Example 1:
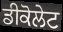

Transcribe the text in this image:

ਡੀਕੋਲੇਟ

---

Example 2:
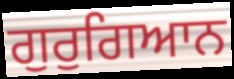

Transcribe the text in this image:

ਗੁਰੁਗਿਆਨ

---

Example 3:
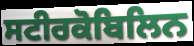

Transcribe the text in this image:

ਸਟੀਰਕੋਬਿਲਿਨ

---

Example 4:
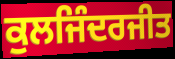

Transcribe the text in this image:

ਕੁਲਜਿੰਦਰਜੀਤ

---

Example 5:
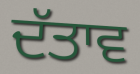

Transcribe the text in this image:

ਦੱਤਾਵ